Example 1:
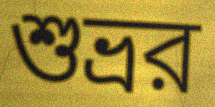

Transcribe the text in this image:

শুভ্রর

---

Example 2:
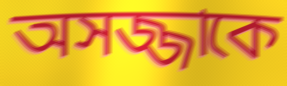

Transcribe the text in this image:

অসজ্জাকে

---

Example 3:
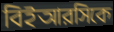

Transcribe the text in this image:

বিইআরসিকে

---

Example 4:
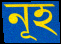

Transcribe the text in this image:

নূহ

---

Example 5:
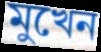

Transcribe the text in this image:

মুখেন